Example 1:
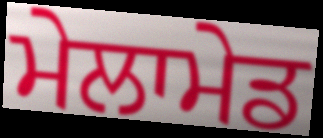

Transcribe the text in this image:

ਮੇਲਾਮੇਡ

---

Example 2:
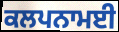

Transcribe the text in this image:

ਕਲਪਨਾਮਈ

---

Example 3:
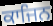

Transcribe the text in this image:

ਕਾਜਿਨ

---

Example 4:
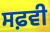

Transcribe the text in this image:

ਸਫ਼ਵੀ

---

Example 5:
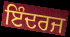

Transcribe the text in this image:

ਇੰਦਰਜ